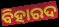
ବିହାରଦ